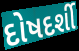
દોષદર્શી